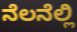
ನೆಲನೆಲ್ಲಿ